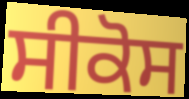
ਸੀਕੋਸ